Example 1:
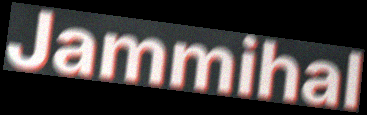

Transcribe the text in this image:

Jammihal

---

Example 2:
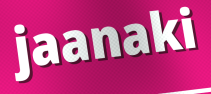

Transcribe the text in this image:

jaanaki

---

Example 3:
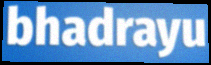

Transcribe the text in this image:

bhadrayu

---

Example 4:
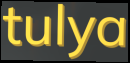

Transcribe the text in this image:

tulya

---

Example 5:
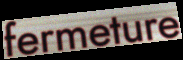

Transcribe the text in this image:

fermeture